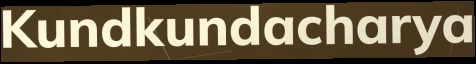
Kundkundacharya